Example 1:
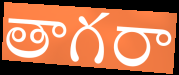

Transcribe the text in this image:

తాగరా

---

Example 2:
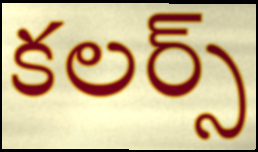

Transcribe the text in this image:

కలర్స్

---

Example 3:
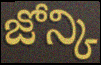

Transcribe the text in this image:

జోన్కి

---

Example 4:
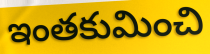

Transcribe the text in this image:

ఇంతకుమించి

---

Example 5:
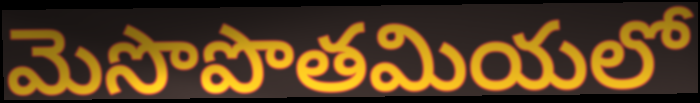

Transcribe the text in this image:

మెసొపొతమియలో